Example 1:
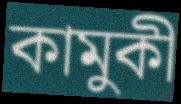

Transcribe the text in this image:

কামুকী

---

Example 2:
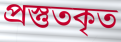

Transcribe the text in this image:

প্রস্তুতকৃত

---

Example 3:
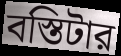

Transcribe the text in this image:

বস্তিটার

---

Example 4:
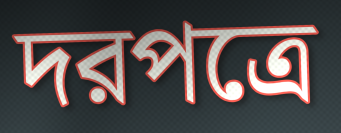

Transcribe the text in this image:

দরপত্রে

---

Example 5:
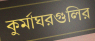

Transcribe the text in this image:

কুর্মাঘরগুলির